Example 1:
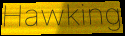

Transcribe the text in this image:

Hawking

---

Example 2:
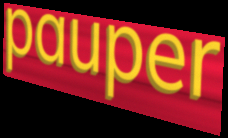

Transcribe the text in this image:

pauper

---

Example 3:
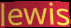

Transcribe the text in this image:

lewis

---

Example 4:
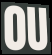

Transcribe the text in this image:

OU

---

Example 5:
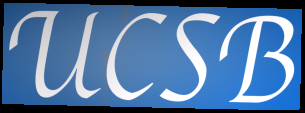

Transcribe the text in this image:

UCSB